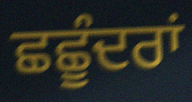
ਛਛੂੰਦਰਾਂ